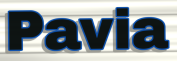
Pavia